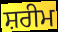
ਸ਼ਰੀਮ